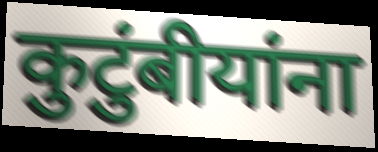
कुटुंबीयांना